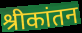
श्रीकांतन